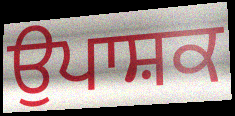
ਉਪਾਸ਼ਕ